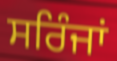
ਸਰਿੰਜਾਂ